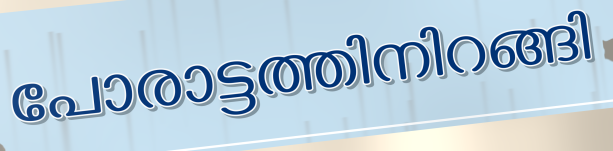
പോരാട്ടത്തിനിറങ്ങി